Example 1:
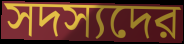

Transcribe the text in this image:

সদস্যদের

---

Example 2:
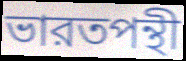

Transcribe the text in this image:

ভারতপন্থী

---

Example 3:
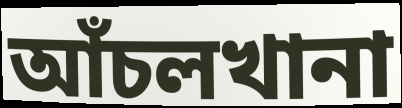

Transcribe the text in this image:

আঁচলখানা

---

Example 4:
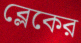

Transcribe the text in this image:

ব্লেকের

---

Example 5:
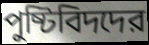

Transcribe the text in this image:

পুষ্টিবিদদের